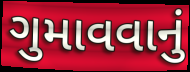
ગુમાવવાનું